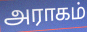
அராகம்